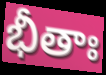
భీతాః